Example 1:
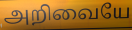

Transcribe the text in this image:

அறிவையே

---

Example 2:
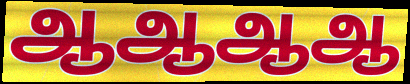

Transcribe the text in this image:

ஆஆஆஆ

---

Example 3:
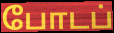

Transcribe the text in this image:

போடப்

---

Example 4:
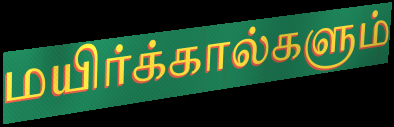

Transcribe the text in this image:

மயிர்க்கால்களும்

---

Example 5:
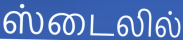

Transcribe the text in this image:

ஸ்டைலில்